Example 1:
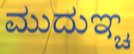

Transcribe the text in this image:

ಮುದುಞ್ಚ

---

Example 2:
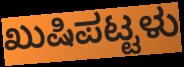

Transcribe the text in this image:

ಖುಷಿಪಟ್ಟಳು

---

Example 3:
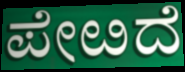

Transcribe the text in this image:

ಪೇೞದೆ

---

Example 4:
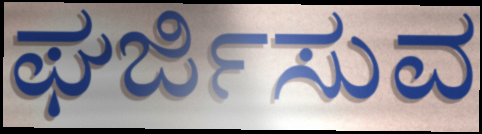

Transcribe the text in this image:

ಘರ್ಜಿಸುವ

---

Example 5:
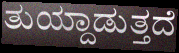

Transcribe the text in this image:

ತುಯ್ದಾಡುತ್ತದೆ